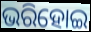
ଭରିହୋଇ